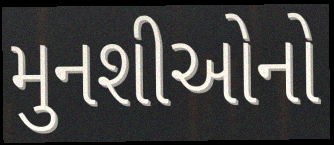
મુનશીઓનો